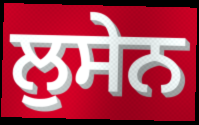
ਲੁਸੇਨ